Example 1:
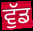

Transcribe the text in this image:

ਵੁੱਡ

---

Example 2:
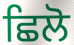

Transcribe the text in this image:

ਛਿਲੋ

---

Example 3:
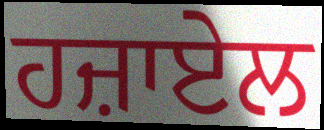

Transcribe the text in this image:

ਹਜ਼ਾਏਲ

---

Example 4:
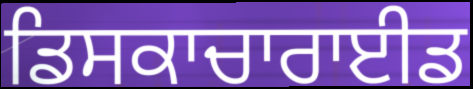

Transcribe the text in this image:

ਡਿਸਕਾਚਾਰਾਈਡ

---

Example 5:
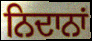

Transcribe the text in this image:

ਨਿਦਾਨਾਂ